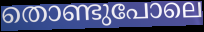
തൊണ്ടുപോലെ